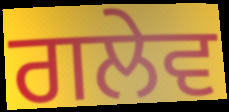
ਗਲੇਵ